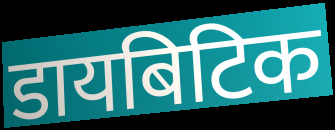
डायबिटिक